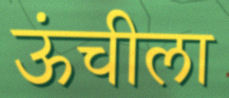
ऊंचीला